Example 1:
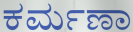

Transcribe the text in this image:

ಕರ್ಮಣಾ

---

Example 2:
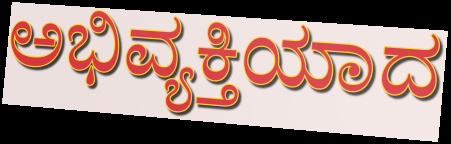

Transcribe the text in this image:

ಅಭಿವ್ಯಕ್ತಿಯಾದ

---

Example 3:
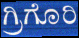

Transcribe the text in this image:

ಗ್ರಿಗೊರಿ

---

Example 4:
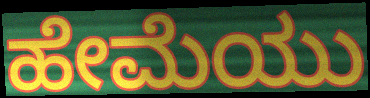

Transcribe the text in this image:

ಹೇಮೆಯು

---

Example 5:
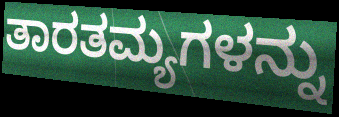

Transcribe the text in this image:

ತಾರತಮ್ಯಗಳನ್ನು